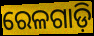
ରେଳଗାଡ଼ି